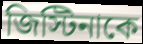
জিস্টিনাকে